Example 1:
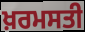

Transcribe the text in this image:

ਖ਼ਰਮਸਤੀ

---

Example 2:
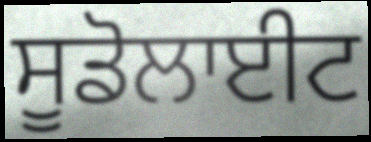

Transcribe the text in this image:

ਸੂਡੋਲਾਈਟ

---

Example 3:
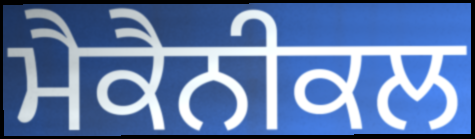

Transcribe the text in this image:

ਮੈਕੈਨੀਕਲ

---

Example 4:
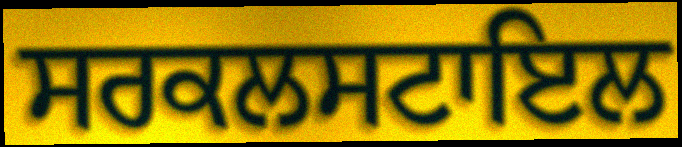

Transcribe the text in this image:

ਸਰਕਲਸਟਾਇਲ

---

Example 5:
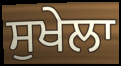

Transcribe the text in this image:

ਸੁਖੇਲਾ